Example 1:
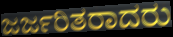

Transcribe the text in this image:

ಜರ್ಜರಿತರಾದರು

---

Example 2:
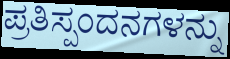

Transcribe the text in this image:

ಪ್ರತಿಸ್ಪಂದನಗಳನ್ನು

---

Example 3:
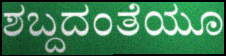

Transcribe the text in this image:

ಶಬ್ದದಂತೆಯೂ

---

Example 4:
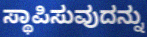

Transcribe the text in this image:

ಸ್ಥಾಪಿಸುವುದನ್ನು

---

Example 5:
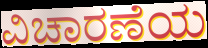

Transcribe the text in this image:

ವಿಚಾರಣೆಯ